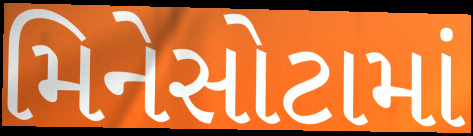
મિનેસોટામાં